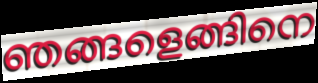
ഞങ്ങളെങ്ങിനെ